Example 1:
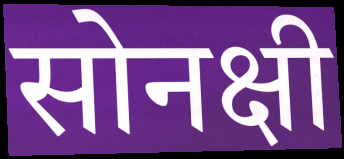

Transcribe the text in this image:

सोनक्षी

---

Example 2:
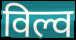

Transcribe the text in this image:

विल्व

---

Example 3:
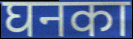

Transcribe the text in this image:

घनका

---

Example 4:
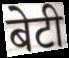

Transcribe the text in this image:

बेटी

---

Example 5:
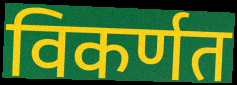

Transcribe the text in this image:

विकर्णत